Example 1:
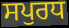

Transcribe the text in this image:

ਸਪੁਰਧ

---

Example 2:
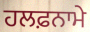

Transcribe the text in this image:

ਹਲਫ਼ਨਾਮੇ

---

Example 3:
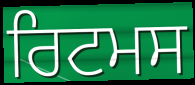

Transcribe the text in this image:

ਰਿਟਮਸ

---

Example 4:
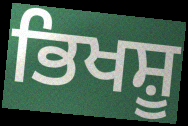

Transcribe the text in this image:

ਭਿਖਸ਼ੂ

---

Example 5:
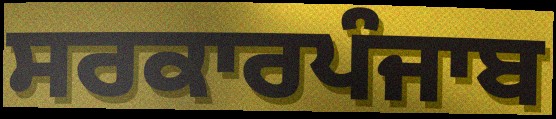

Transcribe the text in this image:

ਸਰਕਾਰਪੰਜਾਬ